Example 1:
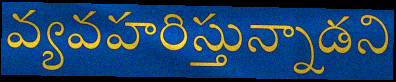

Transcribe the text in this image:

వ్యవహరిస్తున్నాడని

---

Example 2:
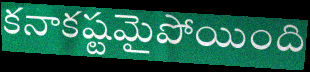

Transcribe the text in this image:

కనాకష్టమైపోయింది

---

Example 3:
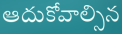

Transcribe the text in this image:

ఆదుకోవాల్సిన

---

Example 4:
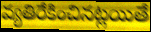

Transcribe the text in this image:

వ్యతిరేకించినట్లయితే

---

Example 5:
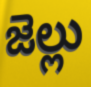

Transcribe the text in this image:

జెల్లు